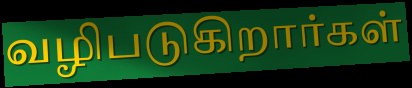
வழிபடுகிறார்கள்